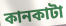
কানকাটা